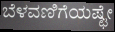
ಬೆಳವಣಿಗೆಯಷ್ಟೇ